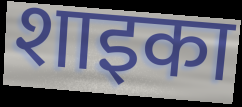
शाइका